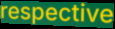
respective